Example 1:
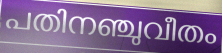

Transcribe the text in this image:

പതിനഞ്ചുവീതം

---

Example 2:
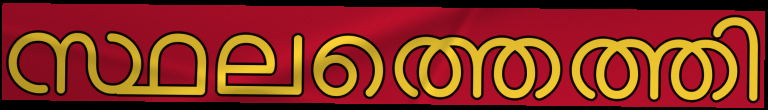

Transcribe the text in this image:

സ്ഥലത്തെത്തി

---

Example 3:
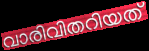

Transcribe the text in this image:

വാരിവിതറിയത്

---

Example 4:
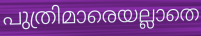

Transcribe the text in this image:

പുത്രിമാരെയല്ലാതെ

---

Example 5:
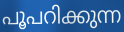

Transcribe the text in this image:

പൂപറിക്കുന്ന